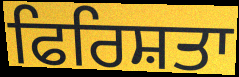
ਫਿਰਿਸ਼ਤਾ